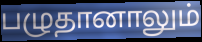
பழுதானாலும்